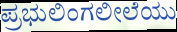
ಪ್ರಭುಲಿಂಗಲೀಲೆಯು